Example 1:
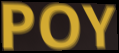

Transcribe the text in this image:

POY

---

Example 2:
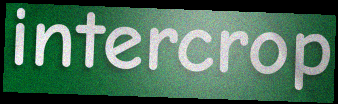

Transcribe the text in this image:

intercrop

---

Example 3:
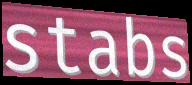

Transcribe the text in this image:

stabs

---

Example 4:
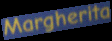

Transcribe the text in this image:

Margherita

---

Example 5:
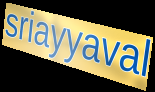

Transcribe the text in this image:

sriayyaval